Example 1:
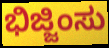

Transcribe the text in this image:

ಭಿಜ್ಜಿಂಸು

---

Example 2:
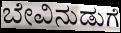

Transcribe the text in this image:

ಬೇವಿನುಡುಗೆ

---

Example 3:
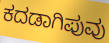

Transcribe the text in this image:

ಕದಡಾಗಿಪುವು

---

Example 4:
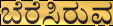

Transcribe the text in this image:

ಬೆರೆಸಿರುವ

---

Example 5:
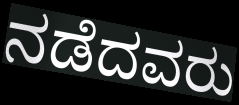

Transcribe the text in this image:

ನಡೆದವರು